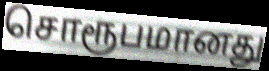
சொரூபமானது